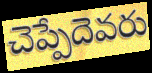
చెప్పేదెవరు